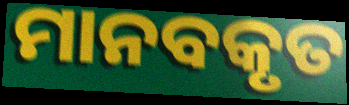
ମାନବକୃତ